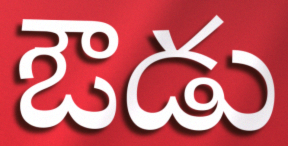
ఔడు